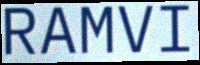
RAMVI